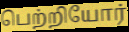
பெற்றியோர்